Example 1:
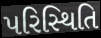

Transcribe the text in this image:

પરિસ્‍થિતિ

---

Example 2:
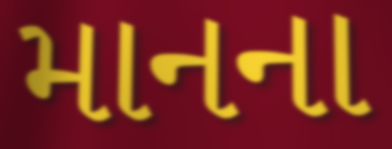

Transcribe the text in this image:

માનના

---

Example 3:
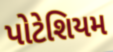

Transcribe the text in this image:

પોટેશિયમ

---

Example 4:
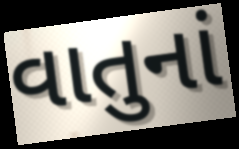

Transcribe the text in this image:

વાતુનાં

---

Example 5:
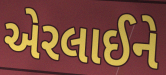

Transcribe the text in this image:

એરલાઈને